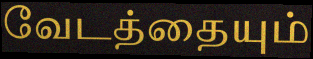
வேடத்தையும்